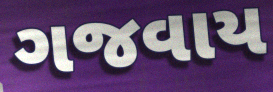
ગજવાય